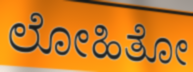
ಲೋಹಿತೋ